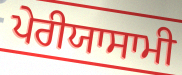
ਪੇਰੀਯਾਸਾਮੀ